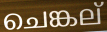
ചെങ്കല്